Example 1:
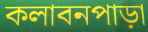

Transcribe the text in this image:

কলাবনপাড়া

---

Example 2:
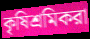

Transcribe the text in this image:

কৃষিশ্রমিকরা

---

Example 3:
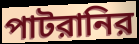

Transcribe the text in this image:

পাটরানির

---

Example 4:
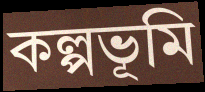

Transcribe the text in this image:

কল্পভূমি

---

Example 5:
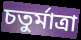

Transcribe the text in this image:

চতুর্মাত্রা